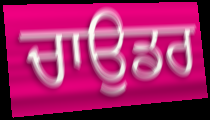
ਚਾਉਡਰ